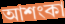
আশংকা